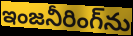
ఇంజనీరింగ్‌ను